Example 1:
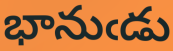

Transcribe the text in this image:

భానుఁడు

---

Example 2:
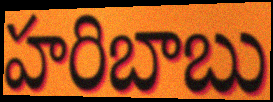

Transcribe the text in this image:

హరిబాబు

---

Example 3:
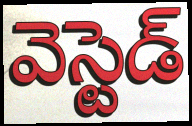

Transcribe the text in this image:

వెస్టెడ్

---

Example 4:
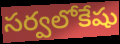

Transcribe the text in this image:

సర్వలోకేషు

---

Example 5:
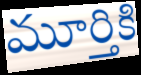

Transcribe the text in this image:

మూర్తికి